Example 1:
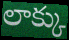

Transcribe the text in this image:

లాక్కు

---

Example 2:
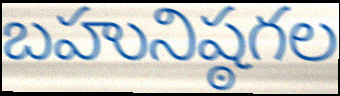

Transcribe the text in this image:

బహునిష్ఠగల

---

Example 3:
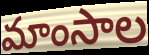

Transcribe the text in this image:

మాంసాల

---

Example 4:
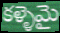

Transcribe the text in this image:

కళ్ళెమై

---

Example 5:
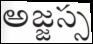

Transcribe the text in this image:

అజ్జస్స